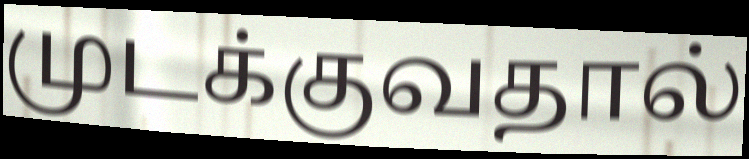
முடக்குவதால்